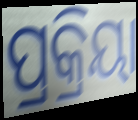
ପ୍ରକ୍ରିୟା